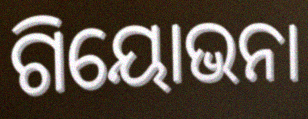
ଗିୟୋଭନା